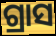
ଗ୍ରାସ